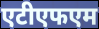
एटीएफएम